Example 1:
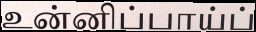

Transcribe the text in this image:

உன்னிப்பாய்ப்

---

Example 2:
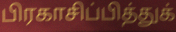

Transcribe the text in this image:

பிரகாசிப்பித்துக்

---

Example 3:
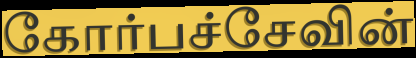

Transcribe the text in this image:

கோர்பச்சேவின்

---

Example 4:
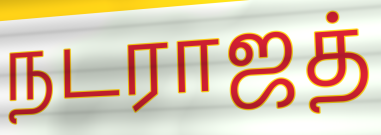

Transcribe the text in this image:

நடராஜத்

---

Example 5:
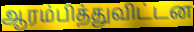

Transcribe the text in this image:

ஆரம்பித்துவிட்டன